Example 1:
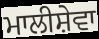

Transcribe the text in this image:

ਮਾਲੀਸ਼ੇਵਾ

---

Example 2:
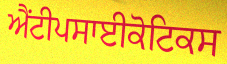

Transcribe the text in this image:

ਐਂਟੀਪਸਾਈਕੋਟਿਕਸ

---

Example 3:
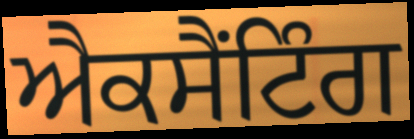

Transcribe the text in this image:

ਐਕਸੈਂਟਿੰਗ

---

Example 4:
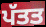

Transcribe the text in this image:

ਪੱਤਤ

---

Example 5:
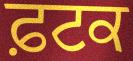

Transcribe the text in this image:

ਫ਼ਟਕ